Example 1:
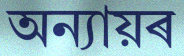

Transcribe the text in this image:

অন্যায়ৰ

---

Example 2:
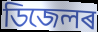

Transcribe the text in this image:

ডিজেলৰ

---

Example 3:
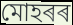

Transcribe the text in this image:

মোহৰৰ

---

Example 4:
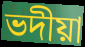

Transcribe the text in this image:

ভদীয়া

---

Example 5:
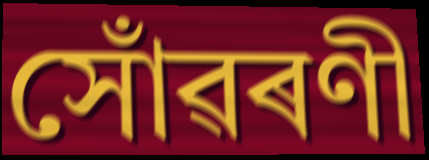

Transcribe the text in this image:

সোঁৱৰণী